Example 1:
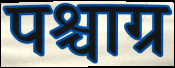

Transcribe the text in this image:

पश्चाग्र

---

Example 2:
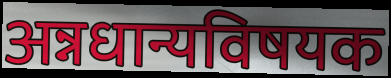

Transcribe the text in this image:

अन्नधान्यविषयक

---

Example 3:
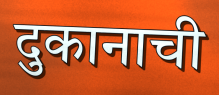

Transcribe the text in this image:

दुकानाची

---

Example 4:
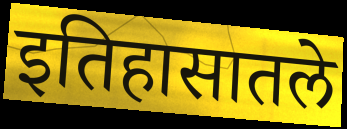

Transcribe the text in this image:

इतिहासातले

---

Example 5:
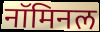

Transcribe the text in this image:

नॉमिनल